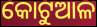
କୋଟୁଆଳ